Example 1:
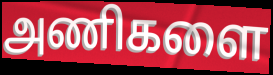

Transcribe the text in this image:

அணிகளை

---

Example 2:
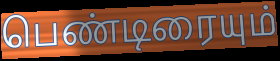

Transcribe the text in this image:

பெண்டிரையும்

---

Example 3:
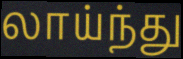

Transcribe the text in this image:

லாய்ந்து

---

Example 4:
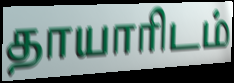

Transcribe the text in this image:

தாயாரிடம்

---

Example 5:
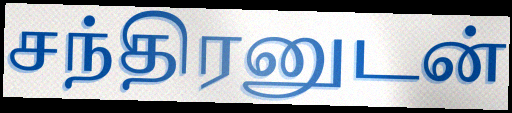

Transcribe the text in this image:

சந்திரனுடன்